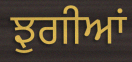
ਝੁਗੀਆਂ